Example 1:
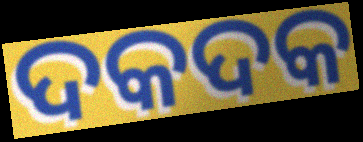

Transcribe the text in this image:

ଦକଦକ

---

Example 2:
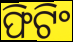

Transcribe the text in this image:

ଫିଟିଂ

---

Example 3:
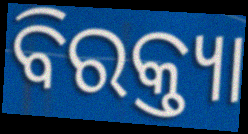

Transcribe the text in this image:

ବିରକ୍ତ୍ୟା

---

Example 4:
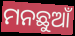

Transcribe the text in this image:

ମନଛୁଆଁ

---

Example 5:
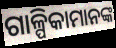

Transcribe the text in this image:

ଗାଳ୍ପିକାମାନଙ୍କ